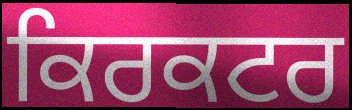
ਕਿਰਕਟਰ